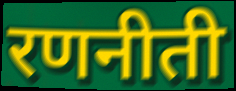
रणनीती